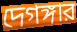
দেগঙ্গার